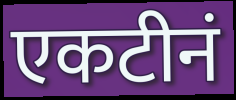
एकटीनं